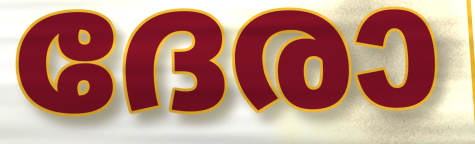
ദേരാ